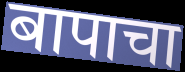
बापाचा